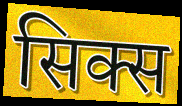
सिक्स